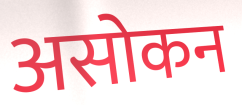
असोकन